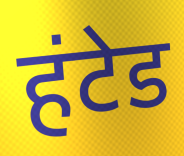
हंटेड